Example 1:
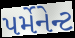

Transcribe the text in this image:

પર્મેનેન્ટ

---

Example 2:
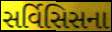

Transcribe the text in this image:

સર્વિસિસના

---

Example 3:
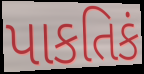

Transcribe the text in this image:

પાકતિકં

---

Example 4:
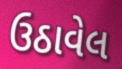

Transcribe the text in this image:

ઉઠાવેલ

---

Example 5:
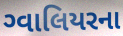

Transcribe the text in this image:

ગ્વાલિયરના